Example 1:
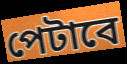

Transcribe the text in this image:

পেটাবে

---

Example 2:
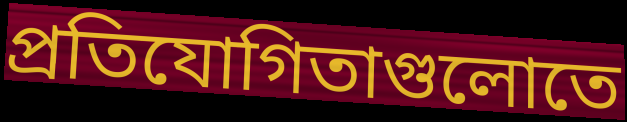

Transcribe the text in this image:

প্রতিযোগিতাগুলোতে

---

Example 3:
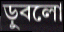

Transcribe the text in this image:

ড়ুবলো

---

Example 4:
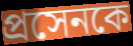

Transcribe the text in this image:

প্রসেনকে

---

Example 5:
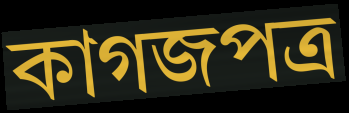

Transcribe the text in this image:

কাগজপত্র